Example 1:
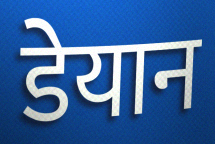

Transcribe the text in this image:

डेयान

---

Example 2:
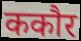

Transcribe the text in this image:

ककौर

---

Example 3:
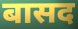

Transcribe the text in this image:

बासद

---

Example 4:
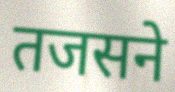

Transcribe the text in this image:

तजसने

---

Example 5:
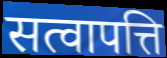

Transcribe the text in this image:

सत्वापत्ति